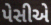
પેસીએ